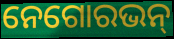
ନେଗୋରଭନ୍